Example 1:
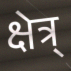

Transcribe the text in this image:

क्षेत्र्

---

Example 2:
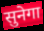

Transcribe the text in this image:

सुनेगा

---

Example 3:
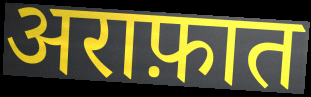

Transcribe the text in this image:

अराफ़ात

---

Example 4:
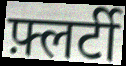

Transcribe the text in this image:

फ़्लर्टी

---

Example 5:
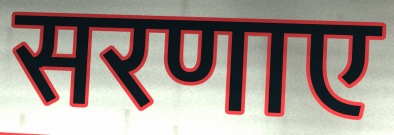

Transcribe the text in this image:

सरणाए